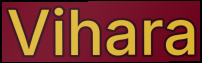
Vihara